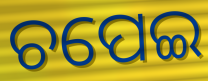
ଚପେଇ